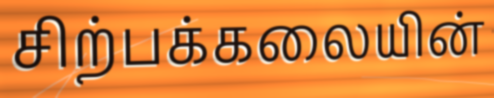
சிற்பக்கலையின்